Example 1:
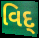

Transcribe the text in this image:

વિદ્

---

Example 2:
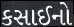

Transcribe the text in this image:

કસાઈનો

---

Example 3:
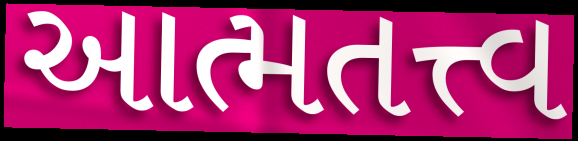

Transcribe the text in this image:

આત્મતત્ત્વ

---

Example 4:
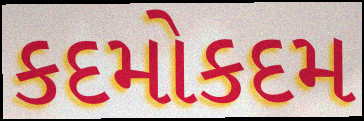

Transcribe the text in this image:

કદમોકદમ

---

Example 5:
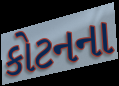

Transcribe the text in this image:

કોટનના